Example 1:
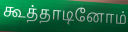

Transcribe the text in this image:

கூத்தாடினோம்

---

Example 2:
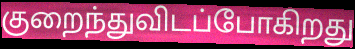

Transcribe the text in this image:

குறைந்துவிடப்போகிறது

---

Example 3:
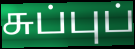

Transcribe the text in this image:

சுப்புப்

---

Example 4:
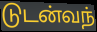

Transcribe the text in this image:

டுடன்வந்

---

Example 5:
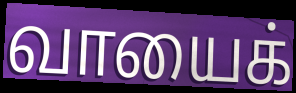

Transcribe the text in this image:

வாயைக்